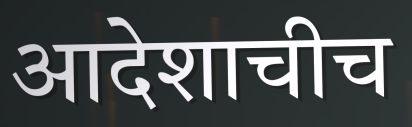
आदेशाचीच